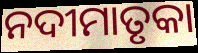
ନଦୀମାତୃକା